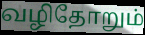
வழிதோறும்